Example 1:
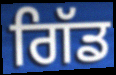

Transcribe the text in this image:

ਗਿੱਡ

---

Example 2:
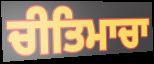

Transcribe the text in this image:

ਚੀਤਿਮਾਚਾ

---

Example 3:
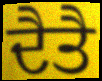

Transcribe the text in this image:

ਦੈਤੈ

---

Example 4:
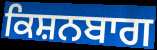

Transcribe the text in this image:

ਕਿਸ਼ਨਬਾਗ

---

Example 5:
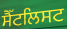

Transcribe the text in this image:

ਸੈੱਟਲਿਸਟ